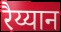
रैय्यान